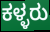
ಕಳ್ಳರು